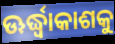
ଊର୍ଦ୍ଧ୍ୱାକାଶକୁ